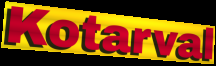
Kotarval